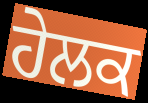
ਹੇਲਕ